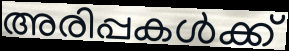
അരിപ്പകൾക്ക്